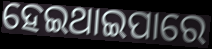
ହେଇଥାଇପାରେ